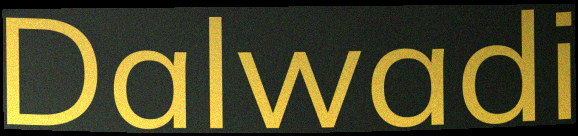
Dalwadi